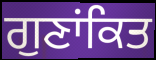
ਗੁਣਾਂਕਿਤ